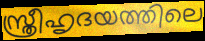
സ്ത്രീഹൃദയത്തിലെ